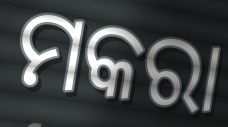
ମକରା